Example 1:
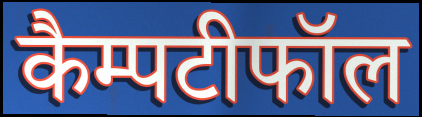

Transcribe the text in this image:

कैम्पटीफॉल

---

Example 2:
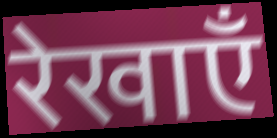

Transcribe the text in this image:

रेखाएँ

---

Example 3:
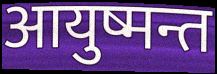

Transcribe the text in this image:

आयुष्मन्त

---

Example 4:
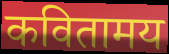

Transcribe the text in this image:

कवितामय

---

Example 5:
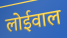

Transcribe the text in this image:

लोईवाल